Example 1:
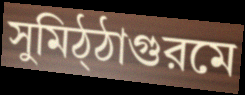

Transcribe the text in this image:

সুমিঠ্ঠাগুরমে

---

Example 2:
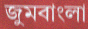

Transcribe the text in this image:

জুমবাংলা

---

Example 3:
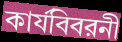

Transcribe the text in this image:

কার্যবিবরনী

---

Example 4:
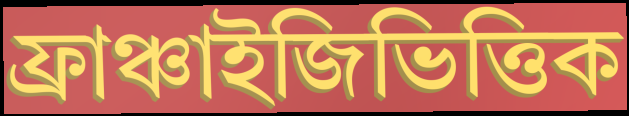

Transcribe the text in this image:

ফ্রাঞ্চাইজিভিত্তিক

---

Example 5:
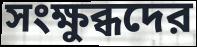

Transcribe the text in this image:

সংক্ষুব্ধদের